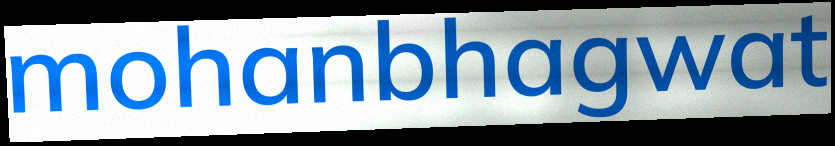
mohanbhagwat